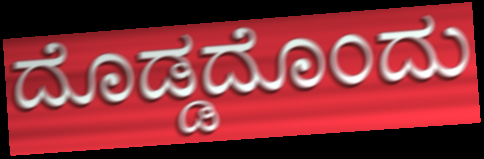
ದೊಡ್ಡದೊಂದು